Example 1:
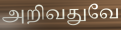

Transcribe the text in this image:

அறிவதுவே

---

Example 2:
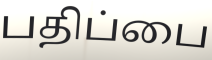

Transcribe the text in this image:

பதிப்பை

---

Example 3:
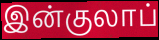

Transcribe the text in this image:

இன்குலாப்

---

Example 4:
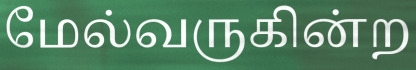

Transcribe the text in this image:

மேல்வருகின்ற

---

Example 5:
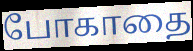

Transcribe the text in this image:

போகாதை